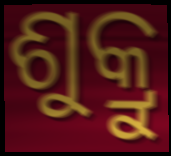
ଶୁକ୍ରୁ